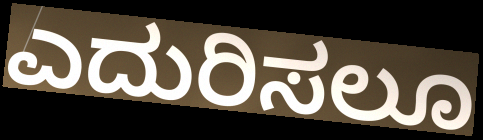
ಎದುರಿಸಲೂ